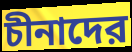
চীনাদের